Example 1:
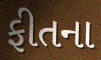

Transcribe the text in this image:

ફીતના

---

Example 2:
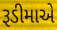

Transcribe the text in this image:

રૂડીમાએ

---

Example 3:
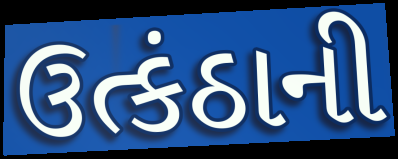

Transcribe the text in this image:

ઉત્કંઠાની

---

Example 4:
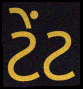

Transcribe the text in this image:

ટેંટ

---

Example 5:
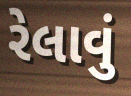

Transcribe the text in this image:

રેલાવું